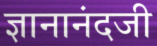
ज्ञानानंदजी